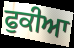
ਫੁਕੀਆ